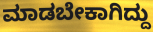
ಮಾಡಬೇಕಾಗಿದ್ದು